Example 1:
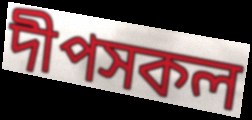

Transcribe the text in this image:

দীপসকল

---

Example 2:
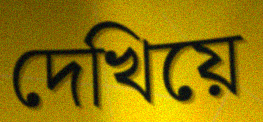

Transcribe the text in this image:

দেখিয়ে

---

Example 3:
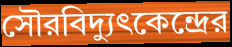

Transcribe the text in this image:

সৌরবিদ্যুৎকেন্দ্রের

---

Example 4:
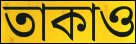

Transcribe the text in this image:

তাকাও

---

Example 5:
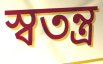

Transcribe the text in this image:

স্বতন্ত্র